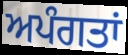
ਅਪੰਗਤਾਂ